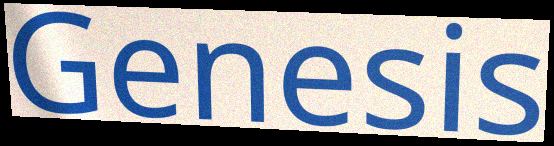
Genesis